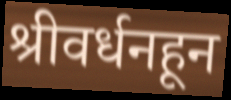
श्रीवर्धनहून